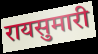
रायसुमारी